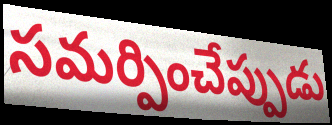
సమర్పించేప్పుడు